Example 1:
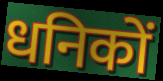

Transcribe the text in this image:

धनिकों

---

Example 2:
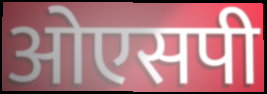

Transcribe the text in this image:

ओएसपी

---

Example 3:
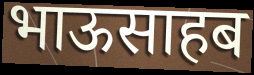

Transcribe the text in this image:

भाऊसाहब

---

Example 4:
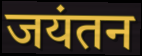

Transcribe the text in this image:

जयंतन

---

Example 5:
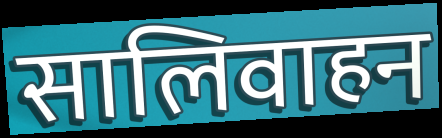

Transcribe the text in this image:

सालिवाहन